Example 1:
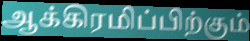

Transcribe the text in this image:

ஆக்கிரமிப்பிற்கும்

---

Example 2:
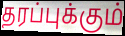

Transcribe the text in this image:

தரப்புக்கும்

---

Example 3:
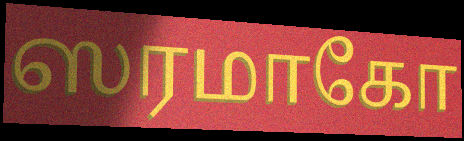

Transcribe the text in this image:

ஸரமாகோ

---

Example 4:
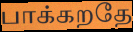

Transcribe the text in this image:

பாக்கறதே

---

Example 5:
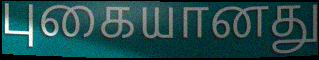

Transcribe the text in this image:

புகையானது